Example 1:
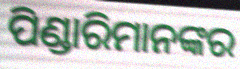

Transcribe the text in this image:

ପିଣ୍ଡାରିମାନଙ୍କର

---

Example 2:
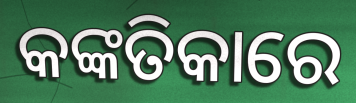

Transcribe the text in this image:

କଙ୍କତିକାରେ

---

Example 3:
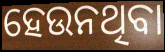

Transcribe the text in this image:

ହେଉନଥିବା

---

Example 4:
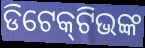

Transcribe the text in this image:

ଡିଟେକ୍‌ଟିଭଙ୍କ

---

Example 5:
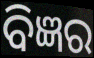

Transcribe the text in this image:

ବିଜ୍ଞର